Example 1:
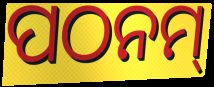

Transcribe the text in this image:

ପଠନମ୍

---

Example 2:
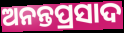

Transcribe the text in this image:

ଅନନ୍ତପ୍ରସାଦ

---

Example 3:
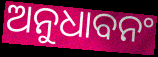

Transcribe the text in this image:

ଅନୁଧାବନଂ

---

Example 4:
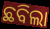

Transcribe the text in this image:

ଛବିଲା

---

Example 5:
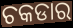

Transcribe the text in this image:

ଚକଡାର